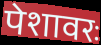
पेशावरः